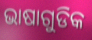
ଭାଷାଗୁଡିକ